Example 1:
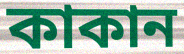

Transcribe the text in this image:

কাকান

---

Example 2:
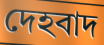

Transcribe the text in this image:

দেহবাদ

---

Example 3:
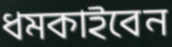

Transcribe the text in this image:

ধমকাইবেন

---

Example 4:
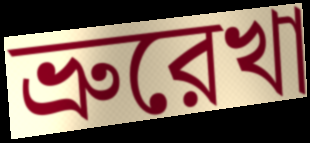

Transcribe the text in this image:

ভ্রুরেখা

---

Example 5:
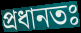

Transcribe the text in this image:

প্রধানতঃ